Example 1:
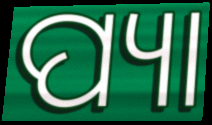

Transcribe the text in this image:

ପ୍ୟା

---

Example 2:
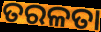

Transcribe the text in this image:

ତରଳତା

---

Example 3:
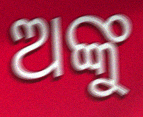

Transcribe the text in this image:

ଅଙ୍କୁ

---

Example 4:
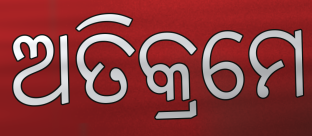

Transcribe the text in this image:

ଅତିକ୍ରମେ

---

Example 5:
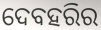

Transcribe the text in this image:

ଦେବହରିର